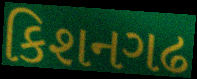
કિશનગઢ